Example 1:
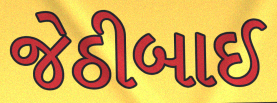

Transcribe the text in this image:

જેઠીબાઈ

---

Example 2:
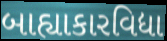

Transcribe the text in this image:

બાહ્યાકારવિદ્યા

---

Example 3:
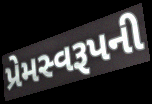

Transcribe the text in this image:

પ્રેમસ્વરૂપની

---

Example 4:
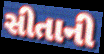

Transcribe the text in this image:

સીતાની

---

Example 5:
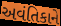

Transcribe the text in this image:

અવંતિકાને